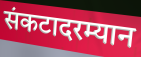
संकटादरम्यान